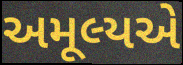
અમૂલ્યએ